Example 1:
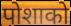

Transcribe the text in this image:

पोशाको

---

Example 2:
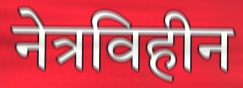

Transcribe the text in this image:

नेत्रविहीन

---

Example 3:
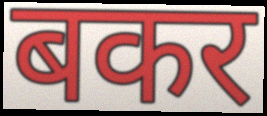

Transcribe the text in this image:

बकर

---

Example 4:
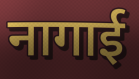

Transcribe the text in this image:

नागाई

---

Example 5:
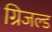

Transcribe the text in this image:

ग्रिजल्ड